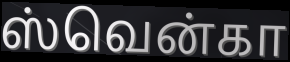
ஸ்வென்கா